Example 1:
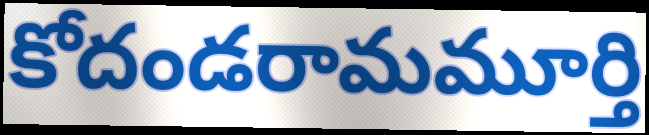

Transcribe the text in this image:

కోదండరామమూర్తి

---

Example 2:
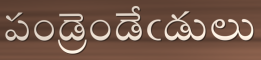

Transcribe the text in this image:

పండ్రెండేఁడులు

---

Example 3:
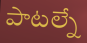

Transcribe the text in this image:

పాటల్నే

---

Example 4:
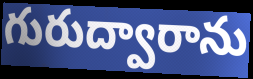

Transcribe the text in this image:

గురుద్వారాను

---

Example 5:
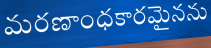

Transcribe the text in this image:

మరణాంధకారమైనను